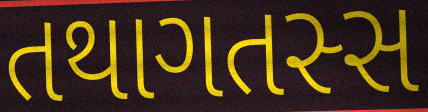
તથાગતસ્સ